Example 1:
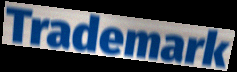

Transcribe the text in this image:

Trademark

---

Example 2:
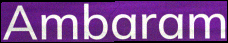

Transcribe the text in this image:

Ambaram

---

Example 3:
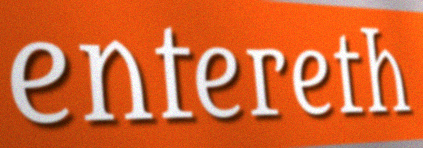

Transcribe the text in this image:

entereth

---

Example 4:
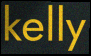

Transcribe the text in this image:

kelly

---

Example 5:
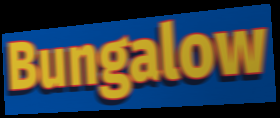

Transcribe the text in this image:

Bungalow